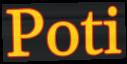
Poti